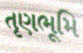
તૃણભૂમિ